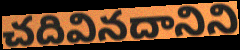
చదివినదానిని